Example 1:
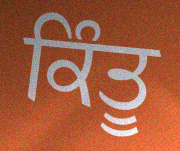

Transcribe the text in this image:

ਕਿੰਤੂ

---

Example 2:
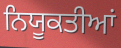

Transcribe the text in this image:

ਨਿਯੂਕਤੀਆਂ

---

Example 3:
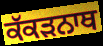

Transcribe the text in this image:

ਕੱਕੜਨਾਥ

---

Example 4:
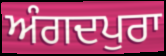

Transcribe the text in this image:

ਅੰਗਦਪੁਰਾ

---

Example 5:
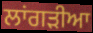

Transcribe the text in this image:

ਲਾਂਗੜੀਆ